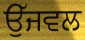
ਉੱਜਵਲ